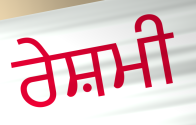
ਰੇਸ਼ਮੀ